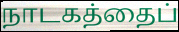
நாடகத்தைப்